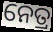
ନେତ୍ର